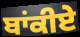
ਬਾਂਕੀਏ